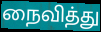
நைவித்து